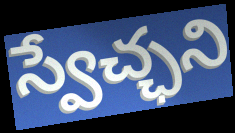
స్వేచ్ఛని